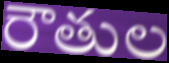
రౌతుల